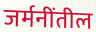
जर्मनींतील